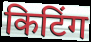
किटिंग